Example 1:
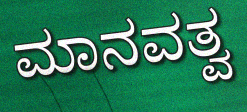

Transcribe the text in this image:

ಮಾನವತ್ವ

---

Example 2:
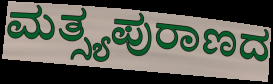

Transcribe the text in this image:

ಮತ್ಸ್ಯಪುರಾಣದ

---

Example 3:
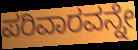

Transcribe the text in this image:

ಪರಿವಾರವನ್ನೇ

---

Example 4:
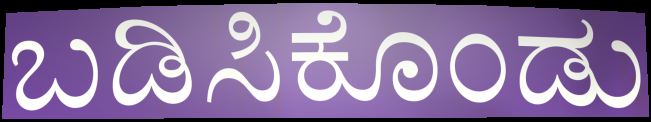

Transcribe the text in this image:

ಬಡಿಸಿಕೊಂಡು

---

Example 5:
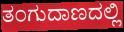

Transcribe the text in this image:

ತಂಗುದಾಣದಲ್ಲಿ